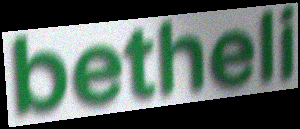
betheli